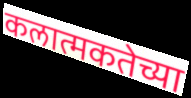
कलात्मकतेच्या